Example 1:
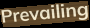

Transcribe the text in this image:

Prevailing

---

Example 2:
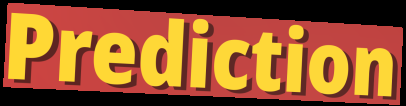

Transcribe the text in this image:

Prediction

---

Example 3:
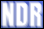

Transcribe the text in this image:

NDR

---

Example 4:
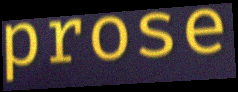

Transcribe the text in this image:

prose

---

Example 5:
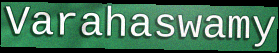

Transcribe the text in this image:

Varahaswamy